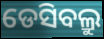
ଡେସିବଲ୍ରୁ